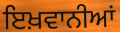
ਇਖ਼ਵਾਨੀਆਂ